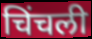
चिंचली